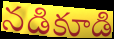
నడికూడి